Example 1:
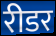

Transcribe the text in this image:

रीडर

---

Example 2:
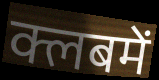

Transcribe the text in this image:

क्लबमें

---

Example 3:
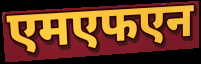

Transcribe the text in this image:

एमएफएन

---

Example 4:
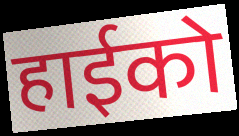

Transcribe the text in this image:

हाईको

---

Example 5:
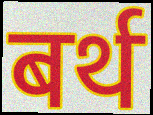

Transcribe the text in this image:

बर्थ